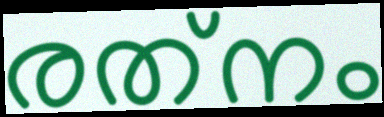
രത്‌നം